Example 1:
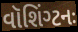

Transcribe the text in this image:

વૉશિંગ્ટનઃ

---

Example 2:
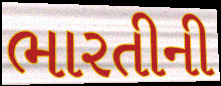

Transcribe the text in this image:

ભારતીની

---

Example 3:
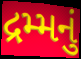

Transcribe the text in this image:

દ્રમ્મનું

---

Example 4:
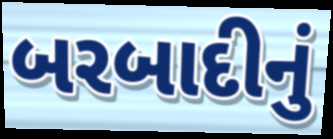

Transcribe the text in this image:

બરબાદીનું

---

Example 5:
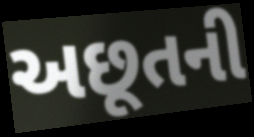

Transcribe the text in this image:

અછૂતની